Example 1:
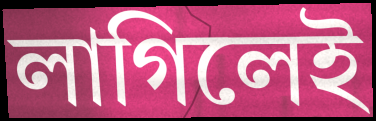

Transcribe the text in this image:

লাগিলেই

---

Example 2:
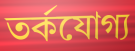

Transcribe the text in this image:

তর্কযোগ্য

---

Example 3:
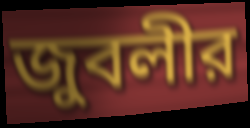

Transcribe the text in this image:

জুবলীর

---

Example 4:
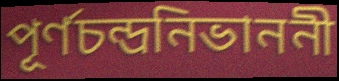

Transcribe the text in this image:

পূর্ণচন্দ্রনিভাননী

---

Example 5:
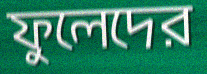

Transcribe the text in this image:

ফুলেদের